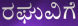
ರಘುವಿಗೆ